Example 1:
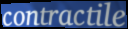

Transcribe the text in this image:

contractile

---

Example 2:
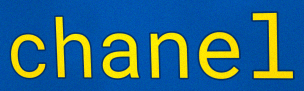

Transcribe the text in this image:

chanel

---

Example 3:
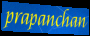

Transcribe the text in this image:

prapanchan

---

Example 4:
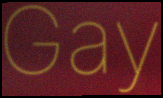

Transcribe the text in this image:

Gay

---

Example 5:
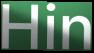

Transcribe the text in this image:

Hin